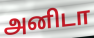
அனிடா